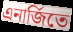
এনার্জিতে